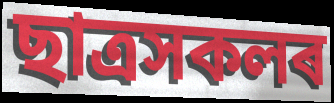
ছাত্ৰসকলৰ